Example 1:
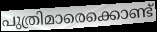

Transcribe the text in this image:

പുത്രിമാരെക്കൊണ്ട്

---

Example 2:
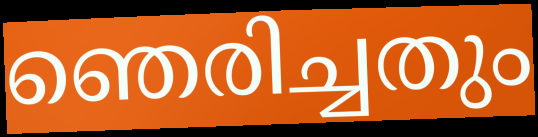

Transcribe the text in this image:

ഞെരിച്ചതും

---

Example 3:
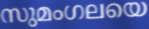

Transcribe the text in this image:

സുമംഗലയെ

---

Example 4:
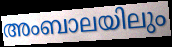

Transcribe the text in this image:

അംബാലയിലും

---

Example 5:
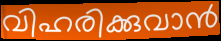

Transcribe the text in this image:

വിഹരിക്കുവാൻ